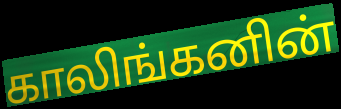
காலிங்கனின்